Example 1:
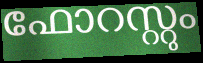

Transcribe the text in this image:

ഫോറസ്റ്റും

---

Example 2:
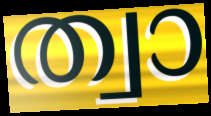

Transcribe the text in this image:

ത്വാ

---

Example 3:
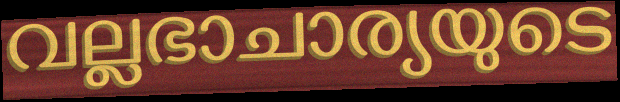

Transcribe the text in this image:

വല്ലഭാചാര്യയുടെ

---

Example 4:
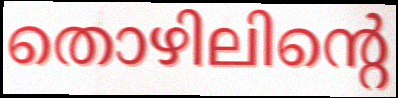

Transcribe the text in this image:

തൊഴിലിന്റെ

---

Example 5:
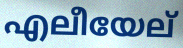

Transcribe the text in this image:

എലീയേല്